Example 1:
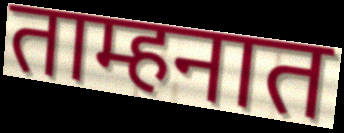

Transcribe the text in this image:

ताम्हनात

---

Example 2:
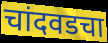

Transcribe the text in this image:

चांदवडचा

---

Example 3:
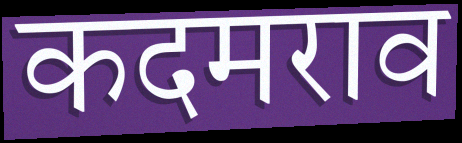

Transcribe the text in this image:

कदमराव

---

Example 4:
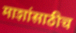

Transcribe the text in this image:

माशांसाठीच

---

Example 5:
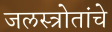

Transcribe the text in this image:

जलस्त्रोतांचे